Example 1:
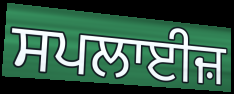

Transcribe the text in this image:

ਸਪਲਾਈਜ਼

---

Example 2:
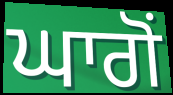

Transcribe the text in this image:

ਘਾਗੋਂ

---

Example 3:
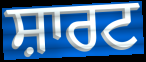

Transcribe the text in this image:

ਸ਼ਾਰਟ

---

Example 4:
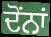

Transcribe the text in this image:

ਦੋਂਨਾਂ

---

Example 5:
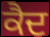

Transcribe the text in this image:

ਕੈਦ